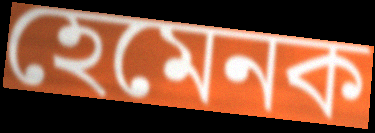
হেমেনক